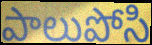
పాలుపోసి